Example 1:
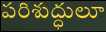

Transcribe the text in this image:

పరిశుద్ధులూ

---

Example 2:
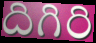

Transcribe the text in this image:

దిగిరి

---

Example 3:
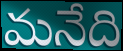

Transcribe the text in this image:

మనేది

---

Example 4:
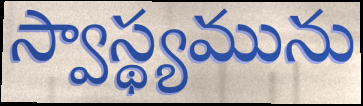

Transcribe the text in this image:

స్వాస్థ్యమును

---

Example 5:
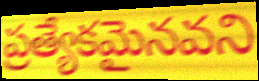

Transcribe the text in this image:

ప్రత్యేకమైనవని